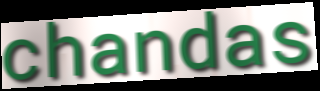
chandas